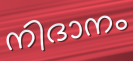
നിദാനം